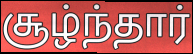
சூழ்ந்தார்